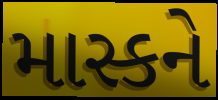
માસ્કને